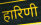
हारिणी